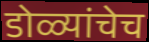
डोळ्यांचेच